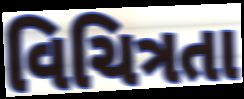
વિચિત્રતા